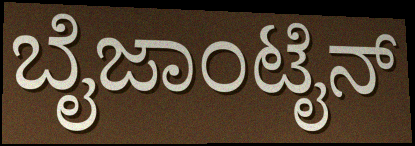
ಬೈಜಾಂಟೈನ್